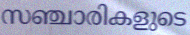
സഞ്ചാരികളുടെ